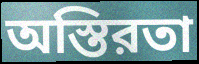
অস্তিরতা